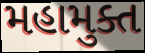
મહામુક્ત